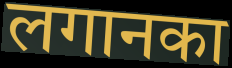
लगानका